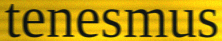
tenesmus